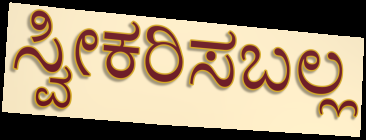
ಸ್ವೀಕರಿಸಬಲ್ಲ